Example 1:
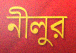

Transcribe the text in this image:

নীলুর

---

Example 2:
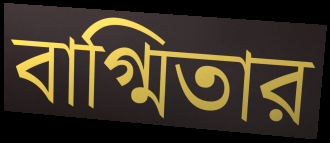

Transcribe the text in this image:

বাগ্মিতার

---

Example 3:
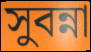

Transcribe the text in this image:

সুবন্না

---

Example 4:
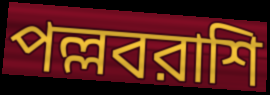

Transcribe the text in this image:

পল্লবরাশি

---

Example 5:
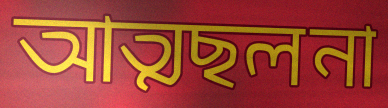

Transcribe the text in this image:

আত্মছলনা